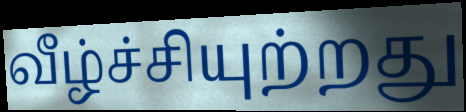
வீழ்ச்சியுற்றது